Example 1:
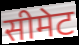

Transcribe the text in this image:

सीमेट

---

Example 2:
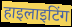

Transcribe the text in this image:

हाइलाइटिंग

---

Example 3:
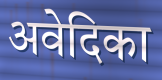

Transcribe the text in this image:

अवेदिका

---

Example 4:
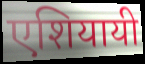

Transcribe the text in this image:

एशियायी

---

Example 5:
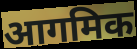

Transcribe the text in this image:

आगमिक